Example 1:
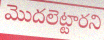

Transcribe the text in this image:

మొదలెట్టారని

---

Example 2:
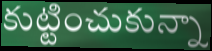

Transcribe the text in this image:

కుట్టించుకున్నా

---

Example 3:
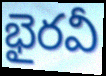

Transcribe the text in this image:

భైరవీ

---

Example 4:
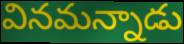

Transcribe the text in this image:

వినమన్నాడు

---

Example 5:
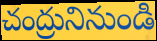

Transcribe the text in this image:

చంద్రునినుండి